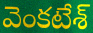
వెంకటేశ్